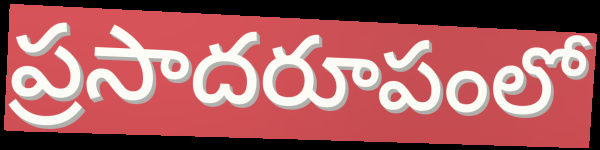
ప్రసాదరూపంలో